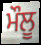
ਮੌਲੂ